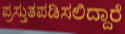
ಪ್ರಸ್ತುತಪಡಿಸಲಿದ್ದಾರೆ